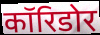
कॉरिडोर